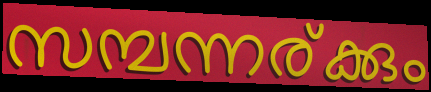
സമ്പന്നര്ക്കും